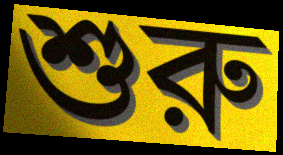
শুরু